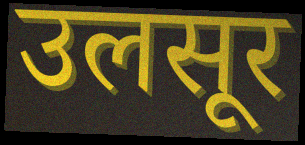
उलसूर